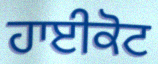
ਹਾਈਕੋਟ